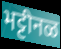
भट्टीनळ